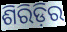
ଶିରିଡ଼ିର